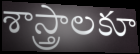
శాస్త్రాలకూ